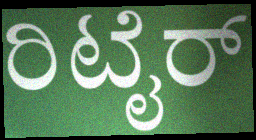
ರಿಟೈರ್